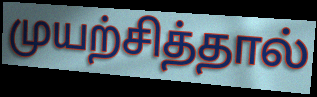
முயற்சித்தால்